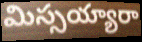
మిస్సయ్యారా